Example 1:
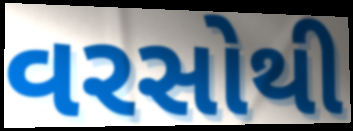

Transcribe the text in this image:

વરસોથી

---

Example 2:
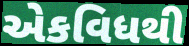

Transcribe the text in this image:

એકવિધથી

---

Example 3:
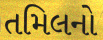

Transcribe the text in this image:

તમિલનો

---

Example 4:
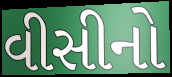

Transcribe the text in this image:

વીસીનો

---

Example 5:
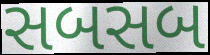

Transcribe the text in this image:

સબસબ